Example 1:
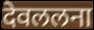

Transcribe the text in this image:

देवललना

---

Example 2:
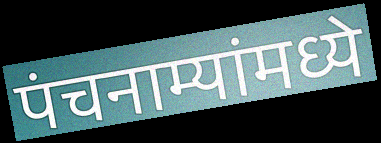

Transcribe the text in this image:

पंचनाम्यांमध्ये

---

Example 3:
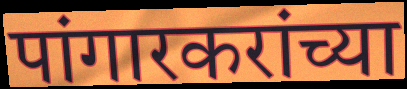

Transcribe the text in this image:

पांगारकरांच्या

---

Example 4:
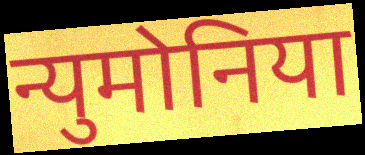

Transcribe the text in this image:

न्युमोनिया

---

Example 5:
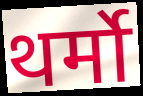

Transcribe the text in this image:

थर्मो